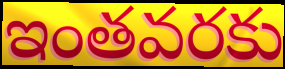
ఇంతవరకు